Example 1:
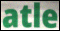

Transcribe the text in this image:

atle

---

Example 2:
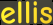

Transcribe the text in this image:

ellis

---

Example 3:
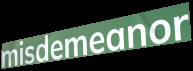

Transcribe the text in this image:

misdemeanor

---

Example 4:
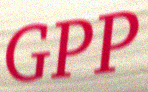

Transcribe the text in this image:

GPP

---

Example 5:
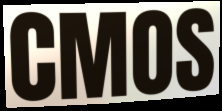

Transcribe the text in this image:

CMOS